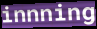
innning